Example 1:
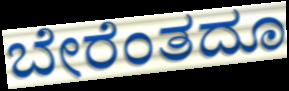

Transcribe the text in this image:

ಬೇರೆಂತದೂ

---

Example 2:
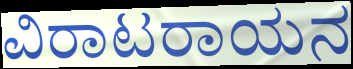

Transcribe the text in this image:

ವಿರಾಟರಾಯನ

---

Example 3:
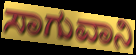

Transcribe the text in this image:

ಸಾಗುವಾನಿ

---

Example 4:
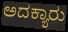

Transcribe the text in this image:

ಅದಕ್ಯಾರು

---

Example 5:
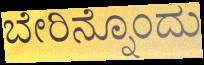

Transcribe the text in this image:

ಬೇರಿನ್ನೊಂದು